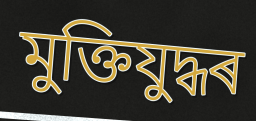
মুক্তিযুদ্ধৰ